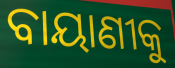
ବାୟାଣୀକୁ